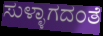
ಸುಳ್ಳಾಗದಂತೆ